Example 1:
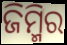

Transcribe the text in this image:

ଜିମ୍ମିର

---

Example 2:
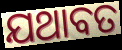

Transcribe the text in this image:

ଯଥାବତ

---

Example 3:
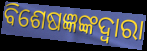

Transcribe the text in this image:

ବିଶେଷଜ୍ଞଙ୍କଦ୍ୱାରା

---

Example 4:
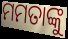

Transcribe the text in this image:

ମମତାଙ୍କୁ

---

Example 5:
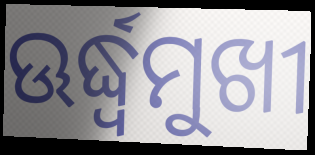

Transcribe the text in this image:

ଊର୍ଦ୍ଧ୍ବମୁଖୀ